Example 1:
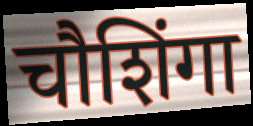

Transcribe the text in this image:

चौशिंगा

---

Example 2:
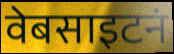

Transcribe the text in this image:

वेबसाइटनं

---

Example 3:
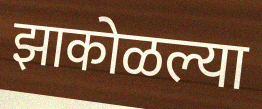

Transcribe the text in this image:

झाकोळल्या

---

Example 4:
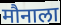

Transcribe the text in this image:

मौनाला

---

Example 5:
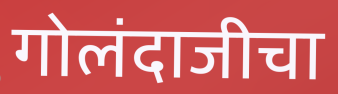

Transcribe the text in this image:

गोलंदाजीचा